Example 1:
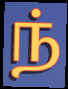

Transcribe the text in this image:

ந்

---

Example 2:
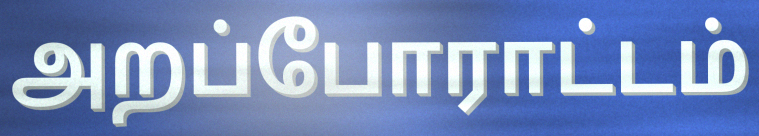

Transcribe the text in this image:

அறப்போராட்டம்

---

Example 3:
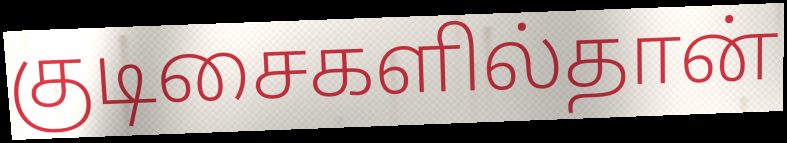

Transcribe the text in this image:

குடிசைகளில்தான்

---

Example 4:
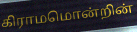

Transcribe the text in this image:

கிராமமொன்றின்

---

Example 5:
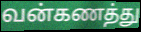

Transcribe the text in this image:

வன்கணத்து